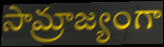
సామ్రాజ్యంగా